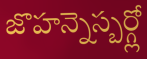
జొహన్నెస్బర్గ్లో